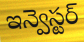
ఇన్వెస్టర్